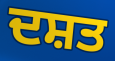
ਦਸ਼ਤ